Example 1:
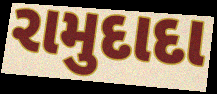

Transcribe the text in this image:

રામુદાદા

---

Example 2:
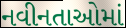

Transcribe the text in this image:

નવીનતાઓમાં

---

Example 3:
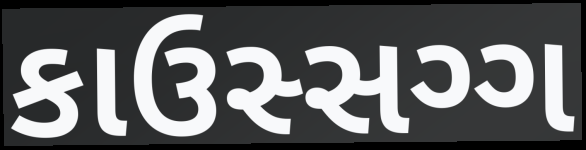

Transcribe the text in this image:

કાઉસ્સગ્ગ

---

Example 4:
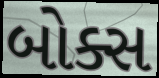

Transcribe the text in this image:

બોક્સ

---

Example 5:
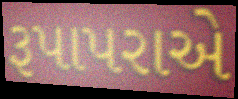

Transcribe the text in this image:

રૂપાપરાએ